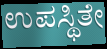
ಉಪಸ್ಥಿತೇ